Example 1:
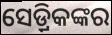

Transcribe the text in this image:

ସେଡ଼୍ରିକଙ୍କର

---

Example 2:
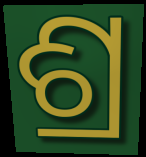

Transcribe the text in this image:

ଶ୍ର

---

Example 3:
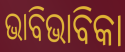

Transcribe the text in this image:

ଭାବିଭାବିକା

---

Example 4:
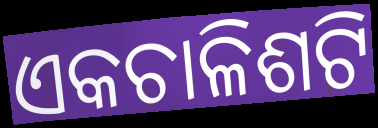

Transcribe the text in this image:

ଏକଚାଳିଶଟି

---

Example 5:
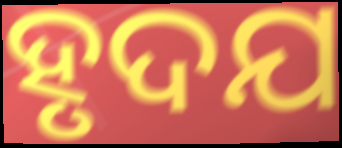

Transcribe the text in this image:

ହୃଦଯ